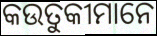
କଉତୁକୀମାନେ